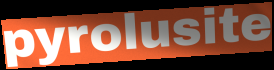
pyrolusite